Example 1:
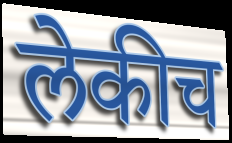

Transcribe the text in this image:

लेकीच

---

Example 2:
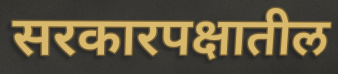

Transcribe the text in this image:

सरकारपक्षातील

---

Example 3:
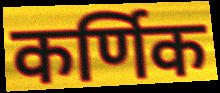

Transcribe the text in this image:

कर्णिक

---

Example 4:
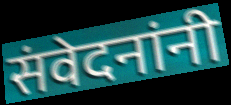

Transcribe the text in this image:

संवेदनांनी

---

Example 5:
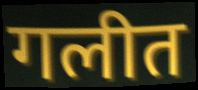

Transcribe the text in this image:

गलीत